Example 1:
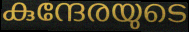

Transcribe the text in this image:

കുന്ദേരയുടെ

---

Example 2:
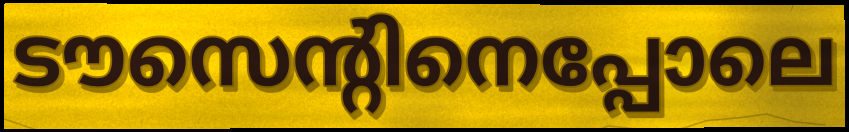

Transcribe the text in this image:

ടൗസെന്റിനെപ്പോലെ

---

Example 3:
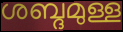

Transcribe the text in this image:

ശബ്ദമുള്ള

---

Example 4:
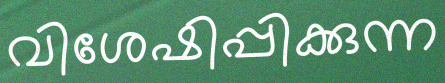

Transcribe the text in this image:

വിശേഷിപ്പിക്കുന്ന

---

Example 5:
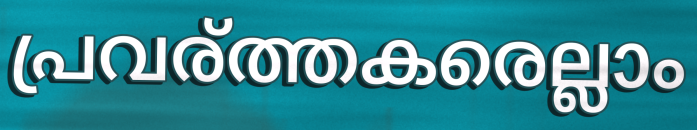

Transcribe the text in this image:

പ്രവര്ത്തകരെല്ലാം